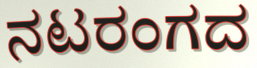
ನಟರಂಗದ